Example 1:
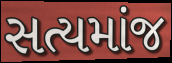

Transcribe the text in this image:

સત્યમાંજ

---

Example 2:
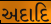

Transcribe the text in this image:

અદાદિ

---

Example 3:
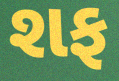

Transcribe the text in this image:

શફ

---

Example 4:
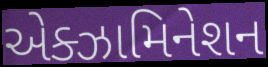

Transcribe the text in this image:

એક્ઝામિનેશન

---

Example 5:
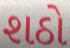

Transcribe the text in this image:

શઠો